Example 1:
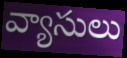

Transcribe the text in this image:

వ్యాసులు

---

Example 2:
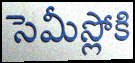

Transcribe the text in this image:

సెమీస్లోకి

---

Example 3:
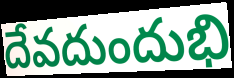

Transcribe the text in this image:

దేవదుందుభి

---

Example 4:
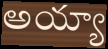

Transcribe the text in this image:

అయ్యా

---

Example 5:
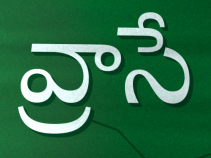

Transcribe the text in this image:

వ్రాసే